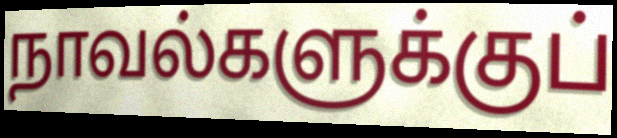
நாவல்களுக்குப்